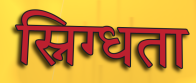
स्निग्धता